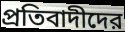
প্রতিবাদীদের